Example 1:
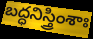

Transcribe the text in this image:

బద్ధనిస్త్రింశాః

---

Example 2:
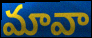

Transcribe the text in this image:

మావా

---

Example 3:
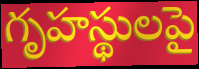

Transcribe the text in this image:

గృహస్థులపై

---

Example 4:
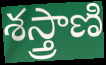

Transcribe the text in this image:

శస్త్రాణి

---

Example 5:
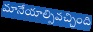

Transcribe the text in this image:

మానేయాల్సివచ్చింది